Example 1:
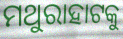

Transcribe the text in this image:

ମଥୁରାହାଟକୁ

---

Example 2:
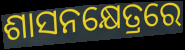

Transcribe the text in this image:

ଶାସନକ୍ଷେତ୍ରରେ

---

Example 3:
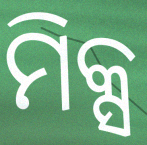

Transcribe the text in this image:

ମିକ୍ସ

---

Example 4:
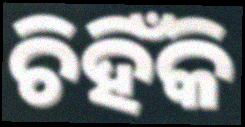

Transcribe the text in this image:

ଚିହିଁକି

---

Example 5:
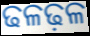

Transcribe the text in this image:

ଢଳଢ଼ଳ